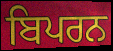
ਬਿਪਰਨ